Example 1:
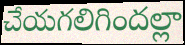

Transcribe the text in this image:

చేయగలిగిందల్లా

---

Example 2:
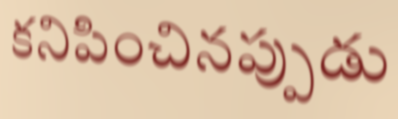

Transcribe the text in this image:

కనిపించినప్పుడు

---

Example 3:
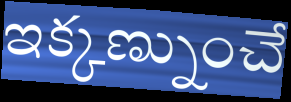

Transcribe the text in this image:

ఇక్కణ్నుంచే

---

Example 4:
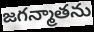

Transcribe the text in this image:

జగన్మాతను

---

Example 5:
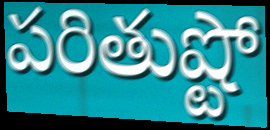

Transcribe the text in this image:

పరితుష్టో